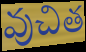
వుచిత